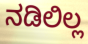
ನಡಿಲಿಲ್ಲ